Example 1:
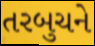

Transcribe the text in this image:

તરબુચને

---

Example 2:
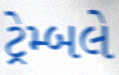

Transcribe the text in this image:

ટ્રેમ્બલે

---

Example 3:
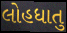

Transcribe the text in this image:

લોહધાતુ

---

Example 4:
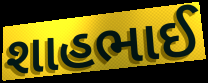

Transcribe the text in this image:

શાહભાઈ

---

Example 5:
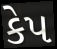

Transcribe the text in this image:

કેપ